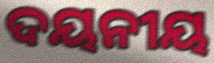
ଦୟନୀୟ